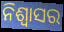
ନିଶ୍ବାସର